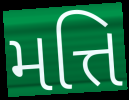
મત્તિ